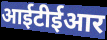
आईटीईआर